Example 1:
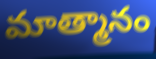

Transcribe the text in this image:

మాత్మానం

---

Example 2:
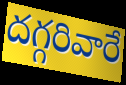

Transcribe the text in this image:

దగ్గరివారే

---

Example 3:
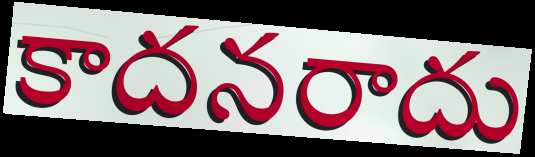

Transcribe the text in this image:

కాదనరాదు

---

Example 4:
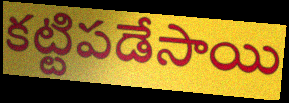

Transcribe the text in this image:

కట్టిపడేసాయి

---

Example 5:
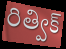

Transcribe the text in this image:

రిత్విక్